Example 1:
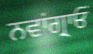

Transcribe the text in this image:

ਨਵਾਂਗ੍ਰਾਓਂ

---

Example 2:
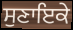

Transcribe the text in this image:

ਸੁਣਾਇਕੇ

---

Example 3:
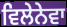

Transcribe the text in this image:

ਵਿਲੇਨੇਵਾ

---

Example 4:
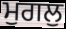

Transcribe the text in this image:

ਮੁਗਲੁ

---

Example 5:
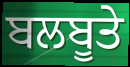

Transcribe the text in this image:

ਬਲਬੂਤੇ